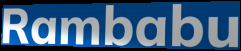
Rambabu